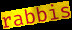
rabbis